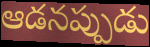
ఆడనప్పుడు